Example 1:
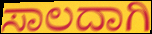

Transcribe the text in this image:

ಸಾಲದಾಗಿ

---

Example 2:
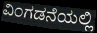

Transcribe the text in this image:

ವಿಂಗಡನೆಯಲ್ಲಿ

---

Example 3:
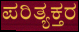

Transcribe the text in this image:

ಪರಿತ್ಯಕ್ತರ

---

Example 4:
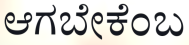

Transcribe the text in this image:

ಆಗಬೇಕೆಂಬ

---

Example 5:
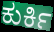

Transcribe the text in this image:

ಕುರ್ಕಿ